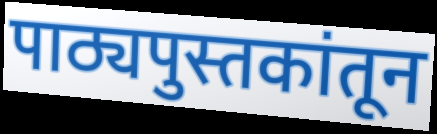
पाठ्यपुस्तकांतून